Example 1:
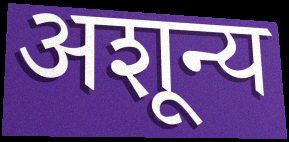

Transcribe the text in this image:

अशून्य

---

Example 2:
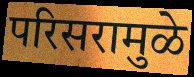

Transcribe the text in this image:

परिसरामुळे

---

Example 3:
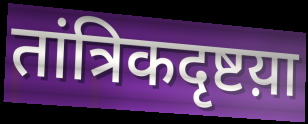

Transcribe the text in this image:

तांत्रिकदृष्टय़ा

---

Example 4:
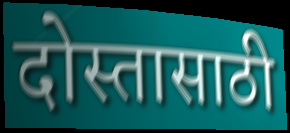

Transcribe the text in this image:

दोस्तासाठी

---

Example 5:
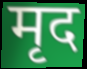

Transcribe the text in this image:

मृद